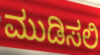
ಮುಡಿಸಲಿ